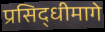
प्रसिद्धीमागे